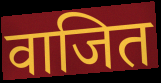
वाजित